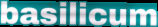
basilicum